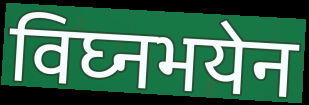
विघ्नभयेन